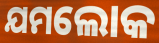
ଯମଲୋକ